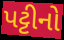
પટ્ટીનો